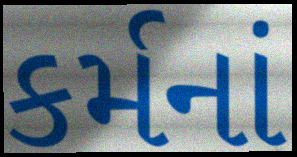
કર્મનાં